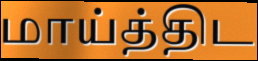
மாய்த்திட